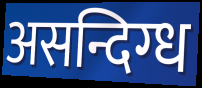
असन्दिग्ध